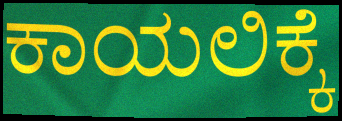
ಕಾಯಲಿಕ್ಕೆ